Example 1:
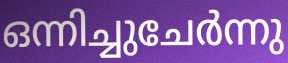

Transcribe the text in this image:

ഒന്നിച്ചുചേർന്നു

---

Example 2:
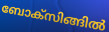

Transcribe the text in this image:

ബോക്സിങ്ങിൽ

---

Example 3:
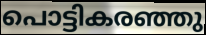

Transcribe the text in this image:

പൊട്ടികരഞ്ഞു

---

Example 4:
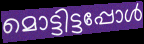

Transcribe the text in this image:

മൊട്ടിട്ടപ്പോൾ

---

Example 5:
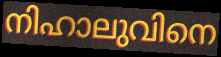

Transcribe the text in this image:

നിഹാലുവിനെ